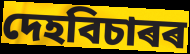
দেহবিচাৰৰ